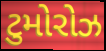
ટુમોરોઝ